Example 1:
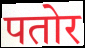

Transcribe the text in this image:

पतोर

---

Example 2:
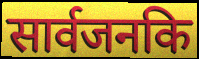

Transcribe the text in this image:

सार्वजनकि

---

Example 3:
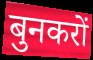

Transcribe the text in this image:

बुनकरों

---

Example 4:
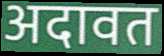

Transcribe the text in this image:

अदावत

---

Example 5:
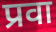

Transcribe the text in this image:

प्रवा